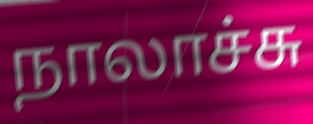
நாலாச்சு